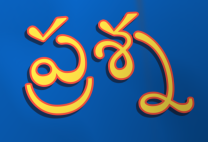
ప్రశ్న